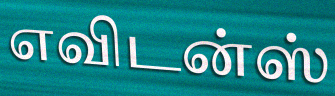
எவிடன்ஸ்